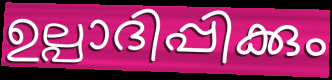
ഉല്പാദിപ്പിക്കും